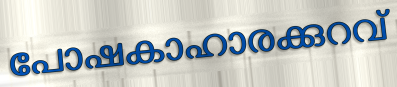
പോഷകാഹാരക്കുറവ്